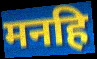
मनहि